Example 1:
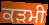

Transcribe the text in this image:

ਕੜਮੀ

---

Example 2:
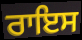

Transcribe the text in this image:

ਰਾਇਸ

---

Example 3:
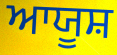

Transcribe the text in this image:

ਆਯੂਸ਼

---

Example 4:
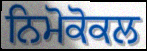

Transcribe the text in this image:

ਨਿਮੋਕੋਕਲ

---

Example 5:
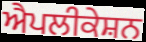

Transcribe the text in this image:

ਐਪਲੀਕੇਸ਼ਨ